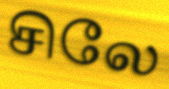
சிலே